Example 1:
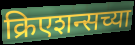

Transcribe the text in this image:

क्रिएशन्सच्या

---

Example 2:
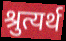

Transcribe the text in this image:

श्रुत्यर्थ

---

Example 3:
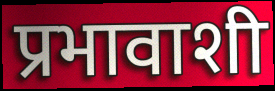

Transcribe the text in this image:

प्रभावाशी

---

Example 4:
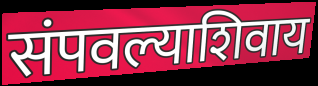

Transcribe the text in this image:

संपवल्याशिवाय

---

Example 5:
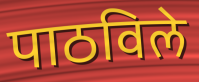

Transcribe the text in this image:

पाठविले